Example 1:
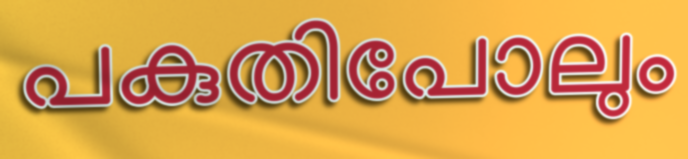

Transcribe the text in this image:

പകുതിപോലും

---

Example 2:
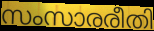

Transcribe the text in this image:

സംസാരരീതി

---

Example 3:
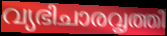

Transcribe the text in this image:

വ്യഭിചാരവൃത്തി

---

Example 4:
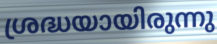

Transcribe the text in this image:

ശ്രദ്ധയായിരുന്നു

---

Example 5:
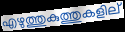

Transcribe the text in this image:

എഴുത്തുകുത്തുകളില്